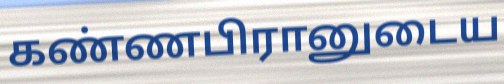
கண்ணபிரானுடைய